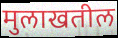
मुलाखतील